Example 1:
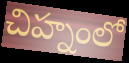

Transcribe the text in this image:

చిహ్నంలో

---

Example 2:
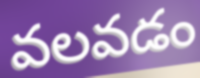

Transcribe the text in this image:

వలవడం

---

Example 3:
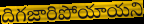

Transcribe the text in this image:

దిగజారిపోయాయని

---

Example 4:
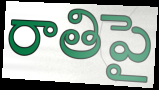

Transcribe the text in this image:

రాతిపై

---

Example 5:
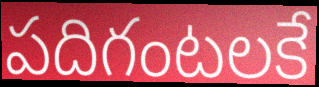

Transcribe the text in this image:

పదిగంటలకే